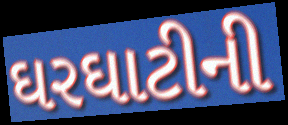
ઘરઘાટીની